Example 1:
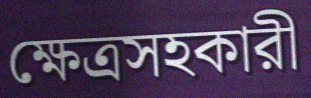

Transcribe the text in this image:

ক্ষেত্রসহকারী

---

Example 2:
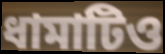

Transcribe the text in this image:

ধামাটিও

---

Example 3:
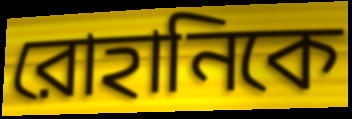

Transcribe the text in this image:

রোহানিকে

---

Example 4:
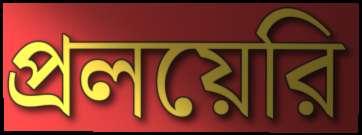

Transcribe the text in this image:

প্রলয়েরি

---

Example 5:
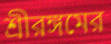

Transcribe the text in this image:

শ্রীরঙ্গমের